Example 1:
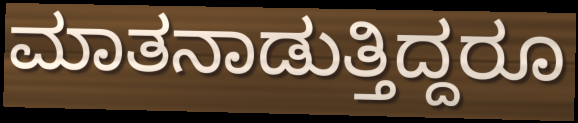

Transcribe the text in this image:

ಮಾತನಾಡುತ್ತಿದ್ದರೂ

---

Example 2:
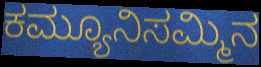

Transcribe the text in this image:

ಕಮ್ಯೂನಿಸಮ್ಮಿನ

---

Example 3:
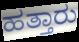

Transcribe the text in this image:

ಹತ್ತಾರು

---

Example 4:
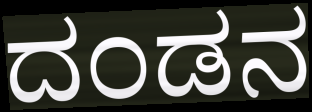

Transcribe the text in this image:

ದಂಡನ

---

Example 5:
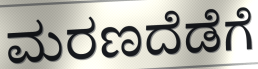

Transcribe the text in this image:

ಮರಣದೆಡೆಗೆ